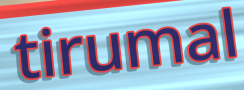
tirumal